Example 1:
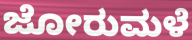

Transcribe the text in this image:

ಜೋರುಮಳೆ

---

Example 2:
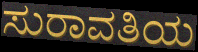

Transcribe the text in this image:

ಸುರಾವತಿಯ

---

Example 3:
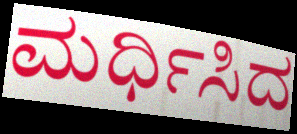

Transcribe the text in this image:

ಮರ್ಧಿಸಿದ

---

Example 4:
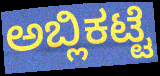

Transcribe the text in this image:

ಅಬ್ಲಿಕಟ್ಟೆ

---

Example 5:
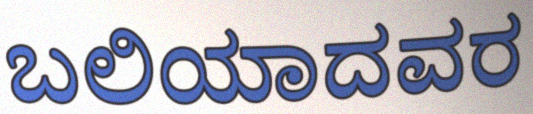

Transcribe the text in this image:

ಬಲಿಯಾದವರ